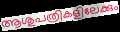
ആശുപത്രികളിലേക്കും